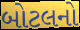
બોટલનો